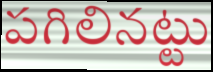
పగిలినట్టు